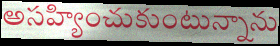
అసహ్యించుకుంటున్నాను